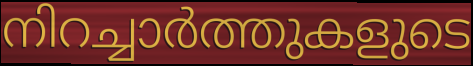
നിറച്ചാർത്തുകളുടെ